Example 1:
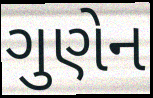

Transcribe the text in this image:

ગુણેન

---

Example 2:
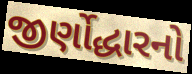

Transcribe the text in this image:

જીર્ણોદ્ધારનો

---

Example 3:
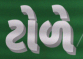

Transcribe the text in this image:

ટોળે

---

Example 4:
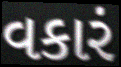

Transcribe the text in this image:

વકારં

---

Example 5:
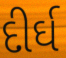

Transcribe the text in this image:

દીર્ઘ